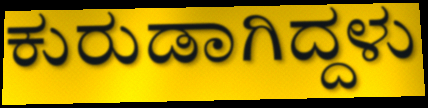
ಕುರುಡಾಗಿದ್ದಳು